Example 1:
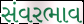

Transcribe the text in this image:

સંવરભાવ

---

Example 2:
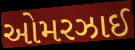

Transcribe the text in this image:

ઓમરઝાઈ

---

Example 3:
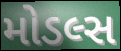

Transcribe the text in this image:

મોડલ્સ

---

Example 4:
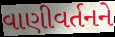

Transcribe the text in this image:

વાણીવર્તનને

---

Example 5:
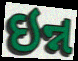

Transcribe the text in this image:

ઇન્ન